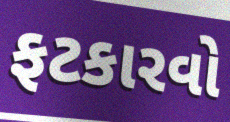
ફટકારવો